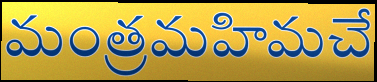
మంత్రమహిమచే